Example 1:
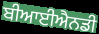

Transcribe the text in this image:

ਬੀਆਈਐਨਡੀ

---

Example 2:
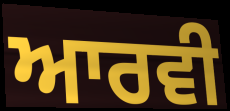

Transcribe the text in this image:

ਆਰਵੀ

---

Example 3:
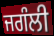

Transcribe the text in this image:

ਜਗੰਲੀ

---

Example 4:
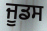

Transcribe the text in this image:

ਜੂਡਸ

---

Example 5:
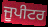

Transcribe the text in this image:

ਜੂਪੀਟਰ